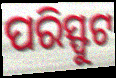
ପରିସ୍ଫୁଟ